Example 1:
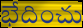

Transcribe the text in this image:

భేదించు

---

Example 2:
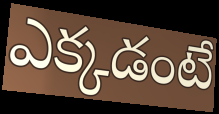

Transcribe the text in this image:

ఎక్కడంటే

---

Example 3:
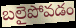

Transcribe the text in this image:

బలైపోవడం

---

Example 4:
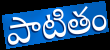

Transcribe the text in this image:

పాటితం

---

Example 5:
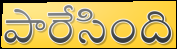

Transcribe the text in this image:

పారేసింది